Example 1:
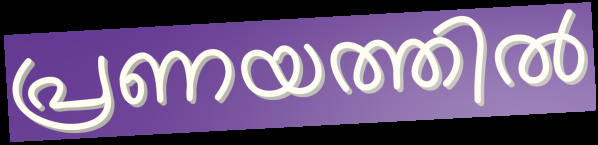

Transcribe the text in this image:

പ്രണയത്തിൽ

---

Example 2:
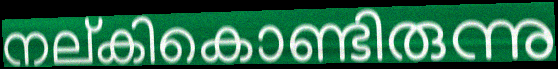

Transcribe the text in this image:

നല്കികൊണ്ടിരുന്നു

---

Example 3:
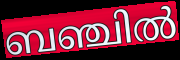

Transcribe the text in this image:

ബഞ്ചിൽ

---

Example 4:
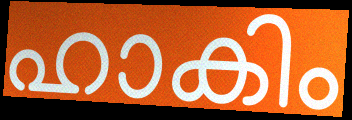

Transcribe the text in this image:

ഹാകിം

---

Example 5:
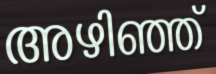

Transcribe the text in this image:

അഴിഞ്ഞ്